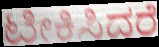
ಟೀಕಿಸಿದರೆ